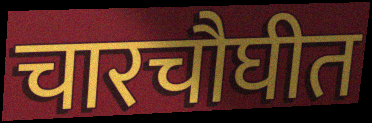
चारचौघीत